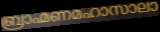
ബ്രാഹ്മണമഹാസാലാ